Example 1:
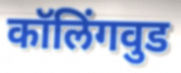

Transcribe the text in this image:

कॉलिंगवुड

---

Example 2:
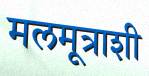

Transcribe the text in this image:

मलमूत्राशी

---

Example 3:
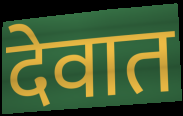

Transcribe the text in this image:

देवात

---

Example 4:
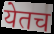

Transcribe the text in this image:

येतच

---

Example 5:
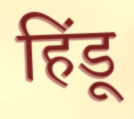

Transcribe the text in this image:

हिंडू